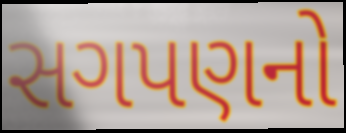
સગપણનો